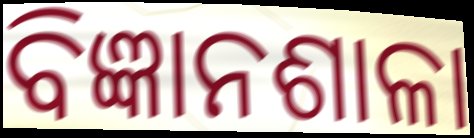
ବିଜ୍ଞାନଶାଳା